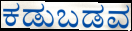
ಕಡುಬಡವ